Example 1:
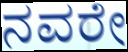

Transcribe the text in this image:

ನವರೇ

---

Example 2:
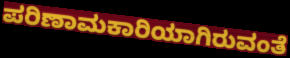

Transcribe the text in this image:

ಪರಿಣಾಮಕಾರಿಯಾಗಿರುವಂತೆ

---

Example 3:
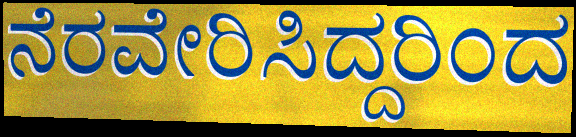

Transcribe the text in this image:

ನೆರವೇರಿಸಿದ್ದರಿಂದ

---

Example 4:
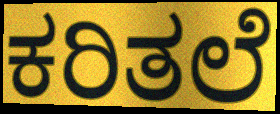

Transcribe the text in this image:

ಕರಿತಲೆ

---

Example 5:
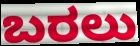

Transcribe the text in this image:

ಬರಲು